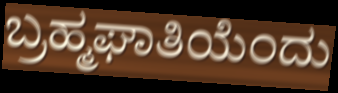
ಬ್ರಹ್ಮಘಾತಿಯೆಂದು